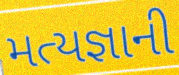
મત્યજ્ઞાની